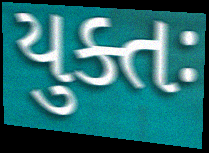
યુક્તઃ